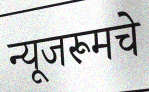
न्यूजरूमचे